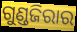
ଗୁଣ୍ଡଜିରାର